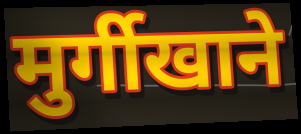
मुर्गीखाने